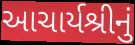
આચાર્યશ્રીનું